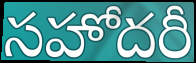
సహోదరీ